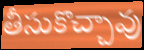
తీసుకొచ్చావు